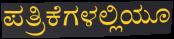
ಪತ್ರಿಕೆಗಳಲ್ಲಿಯೂ